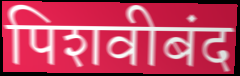
पिशवीबंद